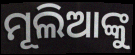
ମୂଲିଆଙ୍କୁ